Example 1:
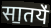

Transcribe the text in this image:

सा॒तये॑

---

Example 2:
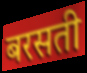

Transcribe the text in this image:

बरसती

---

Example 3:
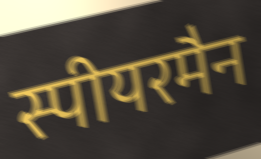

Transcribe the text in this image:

स्पीयरमैन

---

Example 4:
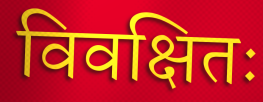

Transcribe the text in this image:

विवक्षितः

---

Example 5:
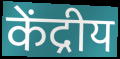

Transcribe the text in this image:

केंद्रीय